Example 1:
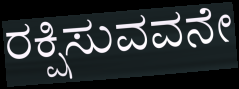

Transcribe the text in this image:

ರಕ್ಷಿಸುವವನೇ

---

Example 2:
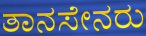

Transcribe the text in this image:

ತಾನಸೇನರು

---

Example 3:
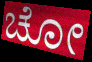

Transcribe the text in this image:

ಚೋ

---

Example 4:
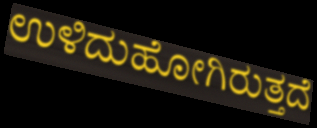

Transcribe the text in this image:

ಉಳಿದುಹೋಗಿರುತ್ತದೆ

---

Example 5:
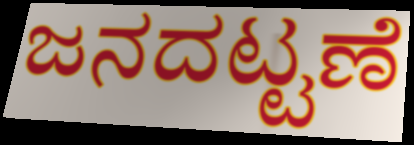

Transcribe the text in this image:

ಜನದಟ್ಟಣೆ